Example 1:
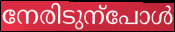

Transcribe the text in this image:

നേരിടുന്പോൾ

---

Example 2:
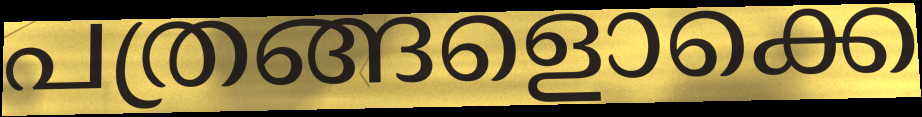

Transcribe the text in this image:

പത്രങ്ങളൊക്കെ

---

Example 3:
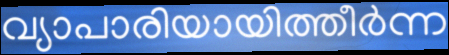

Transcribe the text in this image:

വ്യാപാരിയായിത്തീർന്ന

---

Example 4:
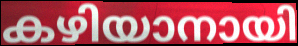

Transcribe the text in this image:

കഴിയാനായി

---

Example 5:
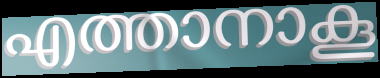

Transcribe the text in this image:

എത്താനാകൂ